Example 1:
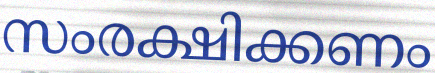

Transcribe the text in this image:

സംരക്ഷിക്കണം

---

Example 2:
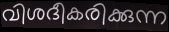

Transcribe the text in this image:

വിശദീകരിക്കുന്ന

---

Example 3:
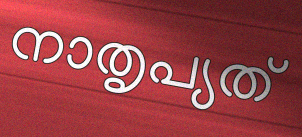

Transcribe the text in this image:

നാതൃപ്യത്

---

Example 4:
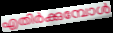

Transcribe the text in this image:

എതിർക്കുമ്പോൾ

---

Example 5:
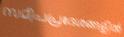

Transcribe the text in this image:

സമീപപ്രദേശങ്ങളിൽ